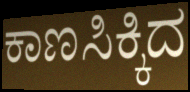
ಕಾಣಸಿಕ್ಕಿದ